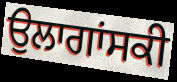
ਉਲਾਗਾਂਸਕੀ